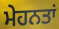
ਮੇਹਨਤਾਂ